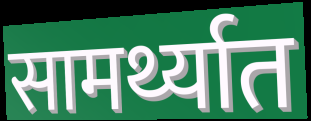
सामर्थ्यात